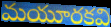
మయూరకవి